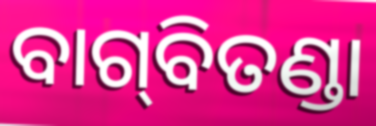
ବାଗ୍‌ବିତଣ୍ଡା